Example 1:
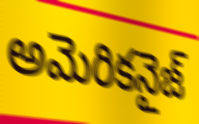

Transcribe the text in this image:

అమెరికనైజ్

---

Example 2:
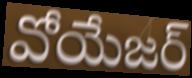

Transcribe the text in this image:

వోయేజర్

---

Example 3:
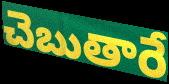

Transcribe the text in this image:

చెబుతారే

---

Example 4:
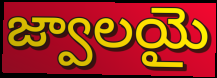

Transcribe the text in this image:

జ్వాలయై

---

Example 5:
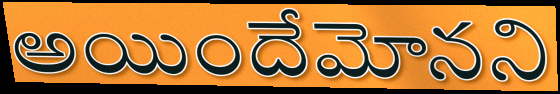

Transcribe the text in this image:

అయిందేమోనని